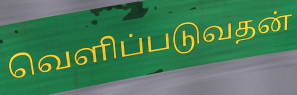
வெளிப்படுவதன்